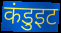
कंडुइट